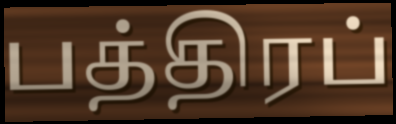
பத்திரப்